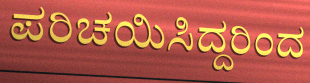
ಪರಿಚಯಿಸಿದ್ದರಿಂದ